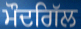
ਮੌਦਗਿੱਲ